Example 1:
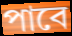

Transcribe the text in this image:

পাবে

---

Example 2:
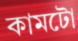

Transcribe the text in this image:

কামটো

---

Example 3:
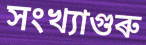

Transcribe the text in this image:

সংখ্যাগুৰু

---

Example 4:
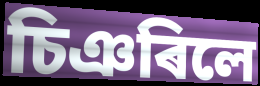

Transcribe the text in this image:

চিঞৰিলে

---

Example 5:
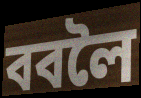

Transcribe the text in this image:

ববলৈ